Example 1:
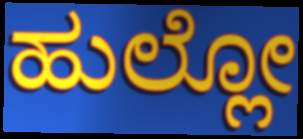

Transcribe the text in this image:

ಹುಲ್ಲೋ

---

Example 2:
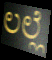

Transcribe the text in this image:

ಲಲ್ಲೆ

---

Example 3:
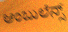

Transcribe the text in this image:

ಆಂಬುಲೆನ್ಸ್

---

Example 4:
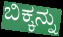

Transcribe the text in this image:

ಬಿಕ್ಕನ್ನು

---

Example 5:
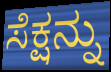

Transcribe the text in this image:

ಸೆಕ್ಷನ್ನು